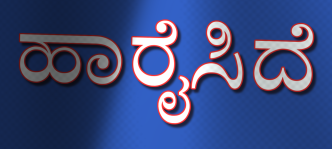
ಹಾರೈಸಿದೆ